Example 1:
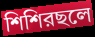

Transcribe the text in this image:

শিশিরছলে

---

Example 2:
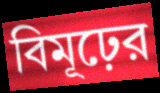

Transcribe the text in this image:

বিমূঢ়ের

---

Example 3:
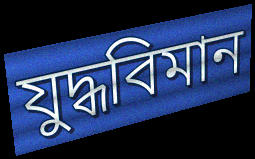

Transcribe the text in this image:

যুদ্ধবিমান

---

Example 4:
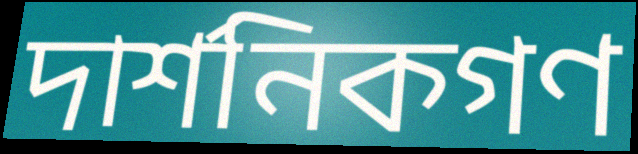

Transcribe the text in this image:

দার্শনিকগণ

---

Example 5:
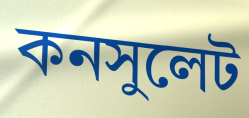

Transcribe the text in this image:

কনসুলেট